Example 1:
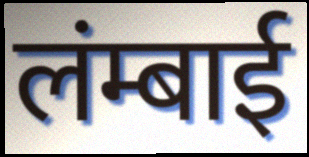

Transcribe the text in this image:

लंम्बाई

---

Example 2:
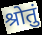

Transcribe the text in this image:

श्रोतुं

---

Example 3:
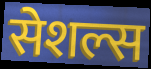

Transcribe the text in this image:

सेशल्स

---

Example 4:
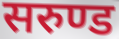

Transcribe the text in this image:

सरुण्ड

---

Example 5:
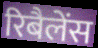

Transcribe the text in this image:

रिबैलेंस